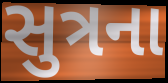
સુત્રના